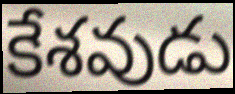
కేశవుడు